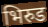
भिरुड